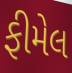
ફીમેલ